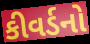
કીવર્ડનો